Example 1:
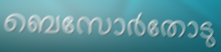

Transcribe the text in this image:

ബെസോർതോടു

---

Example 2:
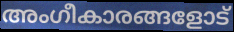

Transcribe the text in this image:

അംഗീകാരങ്ങളോട്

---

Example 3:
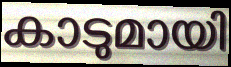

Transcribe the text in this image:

കാടുമായി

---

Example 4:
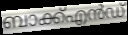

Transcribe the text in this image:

ബാക്ക്എൻഡ്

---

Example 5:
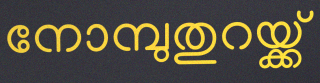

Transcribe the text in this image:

നോമ്പുതുറയ്ക്ക്